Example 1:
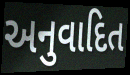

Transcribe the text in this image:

અનુવાદિત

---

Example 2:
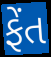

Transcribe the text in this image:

ફેંત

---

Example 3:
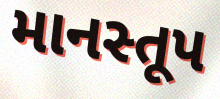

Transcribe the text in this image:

માનસ્તૂપ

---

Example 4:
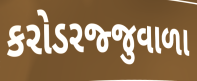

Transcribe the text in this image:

કરોડરજ્જુવાળા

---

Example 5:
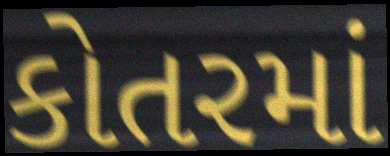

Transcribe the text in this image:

કોતરમાં